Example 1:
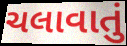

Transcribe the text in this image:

ચલાવાતું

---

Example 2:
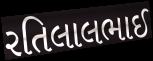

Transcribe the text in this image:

રતિલાલભાઈ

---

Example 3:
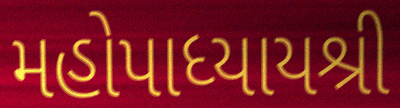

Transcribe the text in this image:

મહોપાધ્યાયશ્રી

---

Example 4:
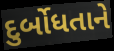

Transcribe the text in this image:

દુર્બોધતાને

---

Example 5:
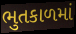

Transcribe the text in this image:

ભુતકાળમાં